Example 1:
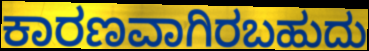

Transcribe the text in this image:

ಕಾರಣವಾಗಿರಬಹುದು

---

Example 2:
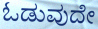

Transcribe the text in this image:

ಓಡುವುದೇ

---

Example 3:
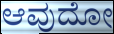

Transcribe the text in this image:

ಆವುದೋ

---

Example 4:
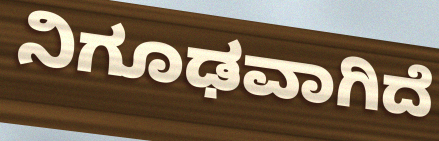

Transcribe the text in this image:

ನಿಗೂಢವಾಗಿದೆ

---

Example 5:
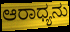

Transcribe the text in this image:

ಆರಾಧ್ಯನು